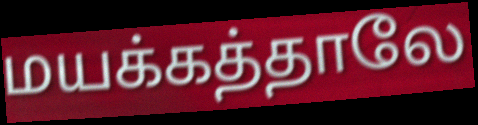
மயக்கத்தாலே